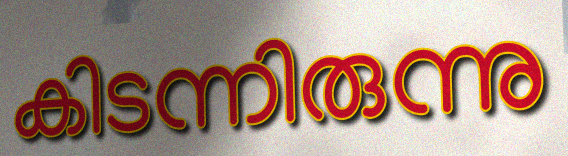
കിടന്നിരുന്നു